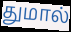
துமால்